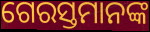
ଗେରସ୍ତମାନଙ୍କ